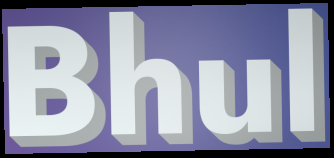
Bhul